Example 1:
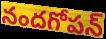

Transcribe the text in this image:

నందగోపన్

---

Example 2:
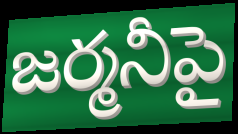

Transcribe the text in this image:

జర్మనీపై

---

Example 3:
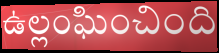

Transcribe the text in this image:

ఉల్లంఘించింది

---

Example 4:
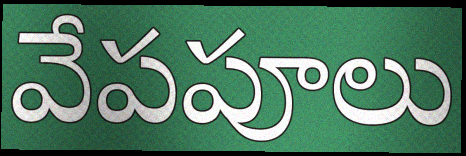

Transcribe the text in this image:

వేపపూలు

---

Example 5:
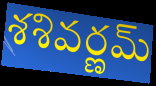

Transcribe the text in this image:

శశివర్ణమ్